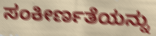
ಸಂಕೀರ್ಣತೆಯನ್ನು